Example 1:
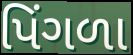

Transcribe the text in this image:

પિંગળા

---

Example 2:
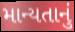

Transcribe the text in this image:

માન્યતાનું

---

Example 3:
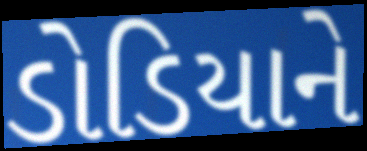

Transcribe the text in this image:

ડોડિયાને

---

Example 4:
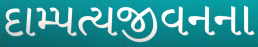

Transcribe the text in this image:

દામ્પત્યજીવનના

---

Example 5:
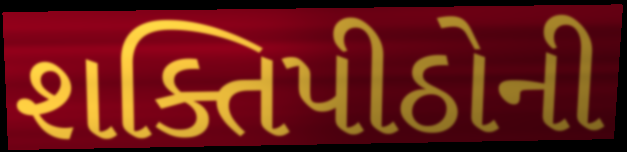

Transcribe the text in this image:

શક્તિપીઠોની